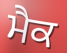
ਮੈਕ